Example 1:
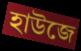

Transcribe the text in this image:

হাউজে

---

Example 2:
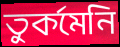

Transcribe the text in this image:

তুর্কমেনি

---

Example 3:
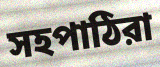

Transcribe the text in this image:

সহপাঠিরা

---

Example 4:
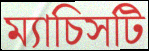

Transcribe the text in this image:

ম্যাচিসটি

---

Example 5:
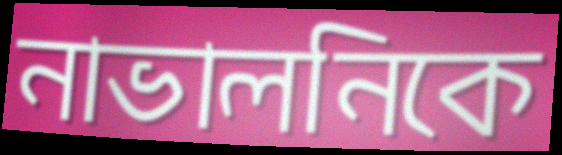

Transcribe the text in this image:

নাভালনিকে